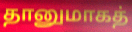
தானுமாகத்